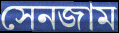
সেনজাম